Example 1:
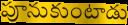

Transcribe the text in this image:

పూనుకుంటాడు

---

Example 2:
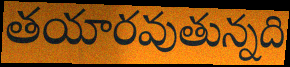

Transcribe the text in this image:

తయారవుతున్నది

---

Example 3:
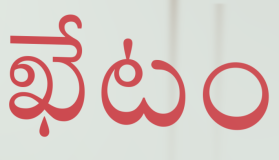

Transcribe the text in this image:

ఖేటం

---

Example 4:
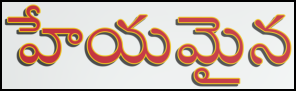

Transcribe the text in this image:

హేయమైన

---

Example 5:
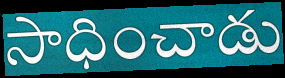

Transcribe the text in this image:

సాధించాడు